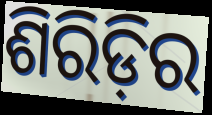
ଶିରିଡ଼ିର